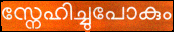
സ്നേഹിച്ചുപോകും